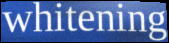
whitening